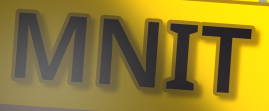
MNIT